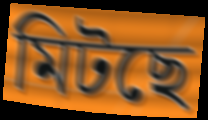
মিটছে